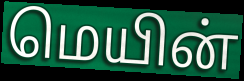
மெயின்